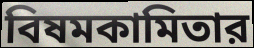
বিষমকামিতার